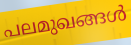
പലമുഖങ്ങൾ